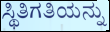
ಸ್ಥಿತಿಗತಿಯನ್ನು